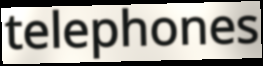
telephones